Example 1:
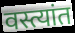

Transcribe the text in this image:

वस्त्यांत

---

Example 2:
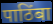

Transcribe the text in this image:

पाठिंबा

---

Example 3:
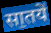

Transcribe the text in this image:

सा॒तये॑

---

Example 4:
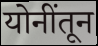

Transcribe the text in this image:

योनींतून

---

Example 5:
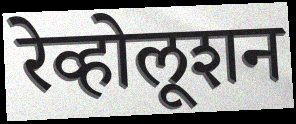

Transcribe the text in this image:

रेव्होलूशन